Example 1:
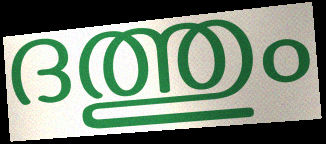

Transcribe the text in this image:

ദത്തും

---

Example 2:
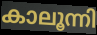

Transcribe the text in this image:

കാലൂന്നി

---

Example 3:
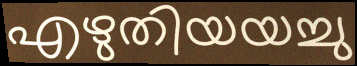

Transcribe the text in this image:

എഴുതിയയച്ചു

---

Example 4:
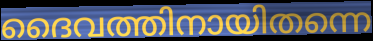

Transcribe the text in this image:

ദൈവത്തിനായിതന്നെ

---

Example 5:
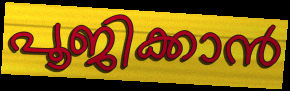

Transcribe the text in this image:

പൂജിക്കാൻ